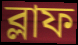
ব্লাফ